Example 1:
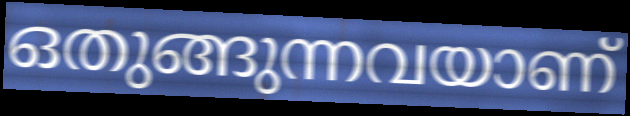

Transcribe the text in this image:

ഒതുങ്ങുന്നവയാണ്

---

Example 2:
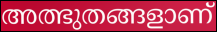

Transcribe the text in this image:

അത്ഭുതങ്ങളാണ്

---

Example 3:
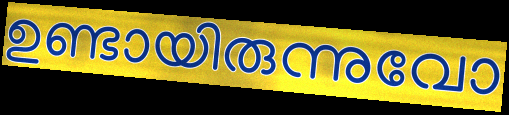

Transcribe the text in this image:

ഉണ്ടായിരുന്നുവോ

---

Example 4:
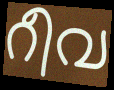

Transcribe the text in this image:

റീവ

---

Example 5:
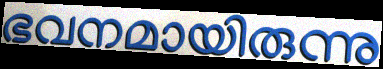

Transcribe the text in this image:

ഭവനമായിരുന്നു